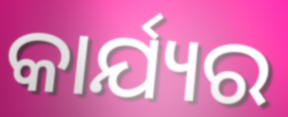
କାର୍ଯ୍ୟର